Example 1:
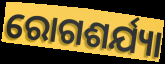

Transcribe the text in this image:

ରୋଗଶର୍ଯ୍ୟା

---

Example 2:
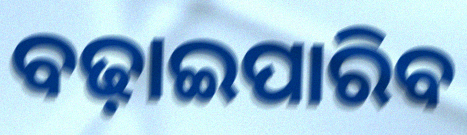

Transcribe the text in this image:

ବଢ଼ାଇପାରିବ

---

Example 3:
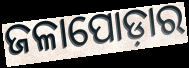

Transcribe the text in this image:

ଜଳାପୋଡ଼ାର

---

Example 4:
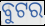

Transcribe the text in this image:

ବୁଟର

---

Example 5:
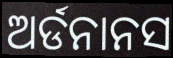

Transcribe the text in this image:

ଅର୍ଡନାନସ